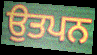
ਉਤਪਨ